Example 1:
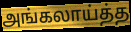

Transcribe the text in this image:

அங்கலாய்த்த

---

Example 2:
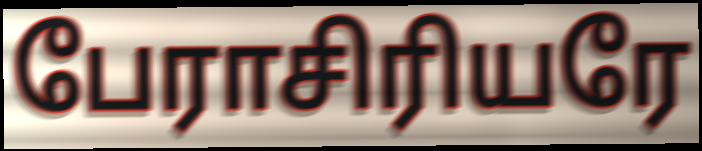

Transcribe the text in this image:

பேராசிரியரே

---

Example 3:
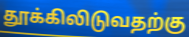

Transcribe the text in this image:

தூக்கிலிடுவதற்கு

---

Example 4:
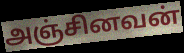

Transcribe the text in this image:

அஞ்சினவன்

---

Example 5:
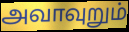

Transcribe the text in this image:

அவாவுறும்